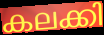
കലക്കി